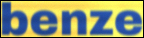
benze